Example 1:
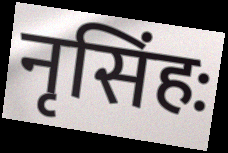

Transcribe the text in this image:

नृसिंहः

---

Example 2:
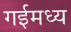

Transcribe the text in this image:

गईमध्य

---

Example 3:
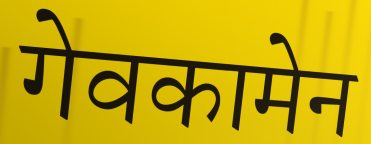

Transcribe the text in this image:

गेवकामेन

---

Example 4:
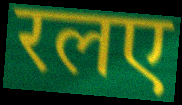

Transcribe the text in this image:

रलए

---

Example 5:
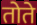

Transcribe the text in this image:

तोते